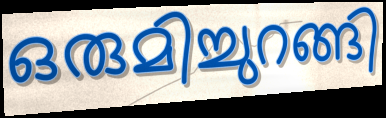
ഒരുമിച്ചുറങ്ങി